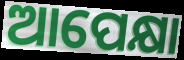
ଆପେକ୍ଷା